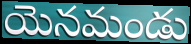
యెనమండు